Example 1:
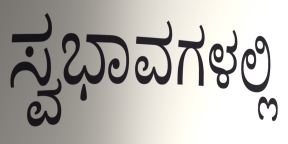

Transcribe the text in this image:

ಸ್ವಭಾವಗಳಲ್ಲಿ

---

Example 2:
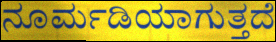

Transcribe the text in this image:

ನೂರ್ಮಡಿಯಾಗುತ್ತದೆ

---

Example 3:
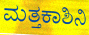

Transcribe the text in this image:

ಮತ್ತಕಾಶಿನಿ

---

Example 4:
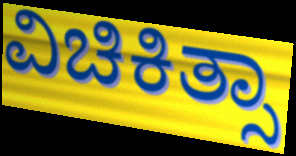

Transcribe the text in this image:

ವಿಚಿಕಿತ್ಸಾ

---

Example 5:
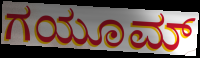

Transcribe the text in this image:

ಗಯೂಮ್